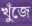
খুঁজে